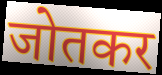
जोतकर